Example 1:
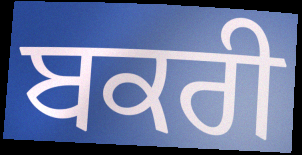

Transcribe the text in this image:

ਬਕਰੀ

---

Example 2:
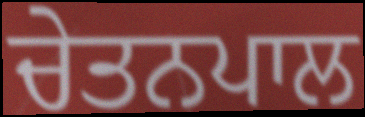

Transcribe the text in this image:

ਚੇਤਨਪਾਲ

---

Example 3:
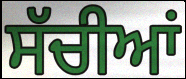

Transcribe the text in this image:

ਸੱਚੀਆਂ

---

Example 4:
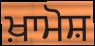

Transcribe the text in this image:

ਖ਼ਾਮੋਸ਼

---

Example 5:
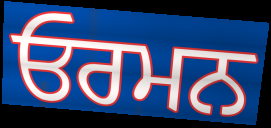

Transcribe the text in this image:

ਓਰਮਨ